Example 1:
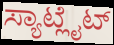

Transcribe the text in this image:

ಸ್ಯಾಟ್ಲೈಟ್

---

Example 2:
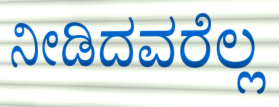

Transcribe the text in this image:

ನೀಡಿದವರೆಲ್ಲ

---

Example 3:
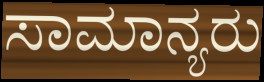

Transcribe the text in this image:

ಸಾಮಾನ್ಯರು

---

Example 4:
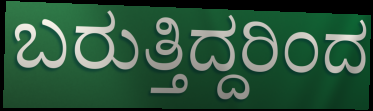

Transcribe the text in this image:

ಬರುತ್ತಿದ್ದರಿಂದ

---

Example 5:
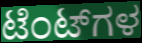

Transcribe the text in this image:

ಟೆಂಟ್‌ಗಳ